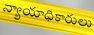
న్యాయాధికారులు